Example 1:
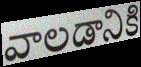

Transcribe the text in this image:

వాలడానికి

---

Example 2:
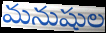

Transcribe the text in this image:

మనుషుల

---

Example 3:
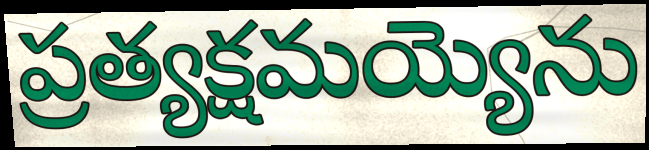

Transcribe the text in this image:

ప్రత్యక్షమయ్యెను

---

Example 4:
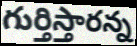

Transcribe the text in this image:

గుర్తిస్తారన్న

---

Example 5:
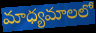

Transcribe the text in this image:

మాధ్యమాలలో